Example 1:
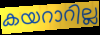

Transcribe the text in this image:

കയറാറില്ല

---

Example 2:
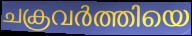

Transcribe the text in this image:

ചക്രവർത്തിയെ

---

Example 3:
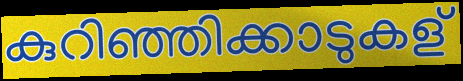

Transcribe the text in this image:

കുറിഞ്ഞിക്കാടുകള്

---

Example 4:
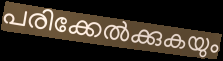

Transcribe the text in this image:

പരിക്കേൽക്കുകയും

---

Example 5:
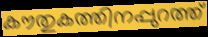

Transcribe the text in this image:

കൗതുകത്തിനപ്പുറത്ത്